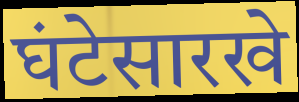
घंटेसारखे